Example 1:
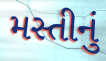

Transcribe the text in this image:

મસ્તીનું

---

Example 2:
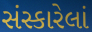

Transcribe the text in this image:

સંસ્કારેલાં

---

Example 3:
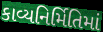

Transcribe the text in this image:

કાવ્યનિર્મિતિમાં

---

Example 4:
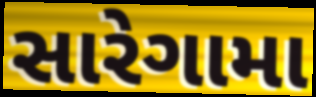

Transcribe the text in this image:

સારેગામા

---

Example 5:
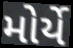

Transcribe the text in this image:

મોર્યે